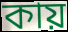
কায়